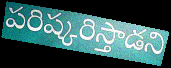
పరిష్కరిస్తాడని